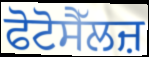
ਫੋਟੋਸੈੱਲਜ਼